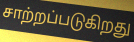
சாற்றப்படுகிறது